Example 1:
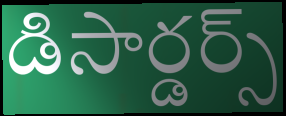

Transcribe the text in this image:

డిసార్డర్స్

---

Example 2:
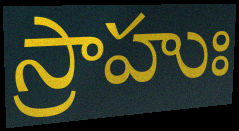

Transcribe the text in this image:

స్రాహుః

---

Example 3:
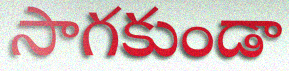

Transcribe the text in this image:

సాగకుండా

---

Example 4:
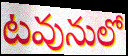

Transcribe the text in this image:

టవునులో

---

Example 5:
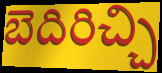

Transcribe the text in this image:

బెదిరిచ్చి